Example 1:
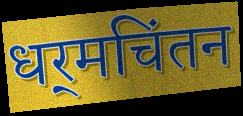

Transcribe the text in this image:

धर्मचिंतन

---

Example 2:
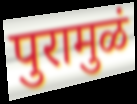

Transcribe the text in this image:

पुरामुळं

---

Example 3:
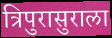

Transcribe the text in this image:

त्रिपुरासुराला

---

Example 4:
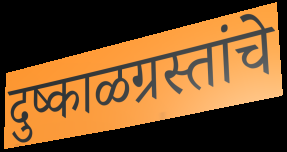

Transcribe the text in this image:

दुष्काळग्रस्तांचे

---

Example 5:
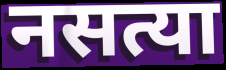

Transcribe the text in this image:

नसत्या